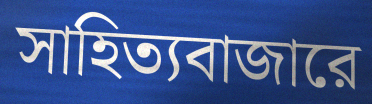
সাহিত্যবাজারে